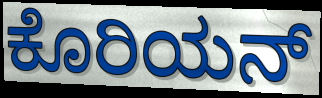
ಕೊರಿಯನ್